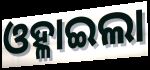
ଓହ୍ଳାଇଲା